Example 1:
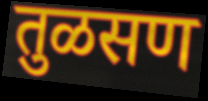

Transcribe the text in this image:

तुळसण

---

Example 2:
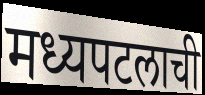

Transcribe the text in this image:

मध्यपटलाची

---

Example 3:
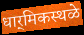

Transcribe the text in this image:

धार्मिकस्थळे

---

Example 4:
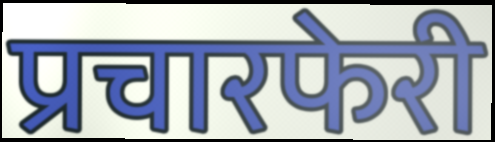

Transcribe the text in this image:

प्रचारफेरी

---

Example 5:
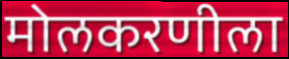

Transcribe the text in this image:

मोलकरणीला